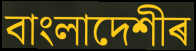
বাংলাদেশীৰ